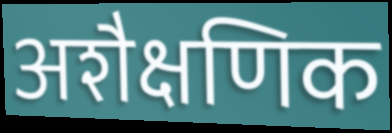
अशैक्षणिक